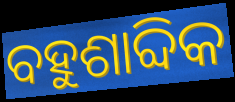
ବହୁଶାବ୍ଦିକ